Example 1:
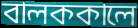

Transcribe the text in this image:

বালককালে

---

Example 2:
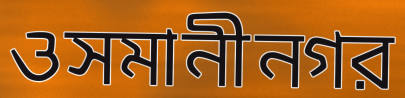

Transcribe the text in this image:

ওসমানীনগর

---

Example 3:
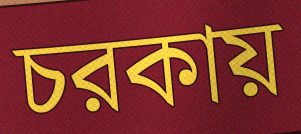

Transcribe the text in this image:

চরকায়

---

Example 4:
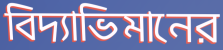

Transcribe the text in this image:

বিদ্যাভিমানের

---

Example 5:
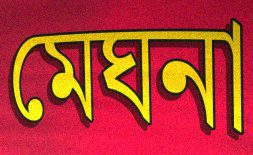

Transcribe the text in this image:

মেঘনা